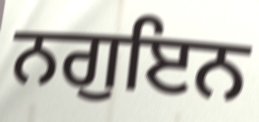
ਨਗੁਇਨ